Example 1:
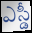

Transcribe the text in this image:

ఎస్డీ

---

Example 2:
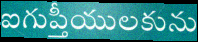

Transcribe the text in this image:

ఐగుప్తీయులకును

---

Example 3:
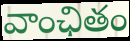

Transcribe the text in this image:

వాంఛితం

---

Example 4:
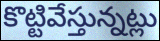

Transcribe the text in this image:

కొట్టివేస్తున్నట్లు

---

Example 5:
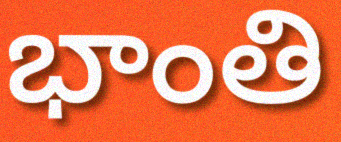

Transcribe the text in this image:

భాంతి